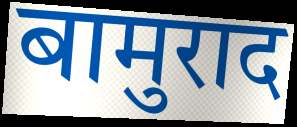
बामुराद